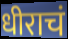
धीराचं